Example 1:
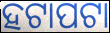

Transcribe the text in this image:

ହଟାପଟା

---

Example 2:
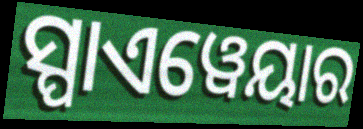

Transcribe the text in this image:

ସ୍ପାଏୱେୟାର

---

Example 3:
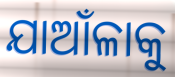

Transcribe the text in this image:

ଯାଆଁଳାକୁ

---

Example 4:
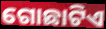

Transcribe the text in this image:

ଗୋଛାଟିଏ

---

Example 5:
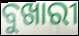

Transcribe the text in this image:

ବୁଖାରୀ